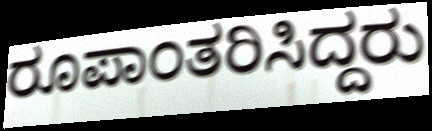
ರೂಪಾಂತರಿಸಿದ್ದರು